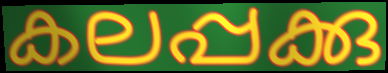
കലപ്പക്കു